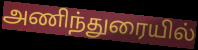
அணிந்துரையில்